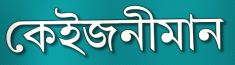
কেইজনীমান